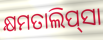
କ୍ଷମତାଲିପ୍‍ସା